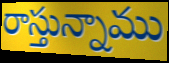
రాస్తున్నాము